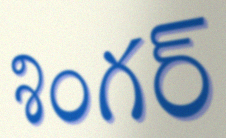
శింగర్